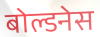
बोल्डनेस